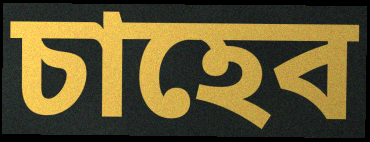
চাহেব